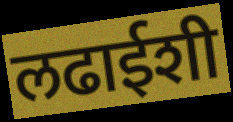
लढाईशी